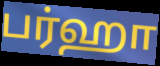
பர்ஹா